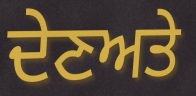
ਦੇਣਅਤੇ